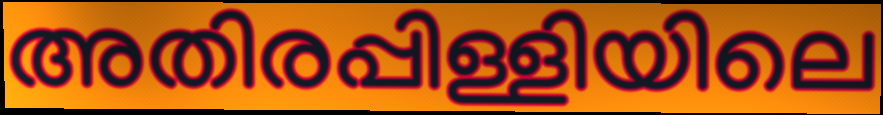
അതിരപ്പിള്ളിയിലെ